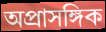
অপ্রাসঙ্গিক